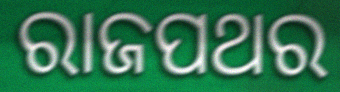
ରାଜପଥର